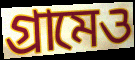
গ্রামেও